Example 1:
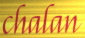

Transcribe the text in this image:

chalan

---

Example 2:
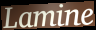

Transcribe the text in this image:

Lamine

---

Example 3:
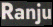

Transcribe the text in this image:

Ranju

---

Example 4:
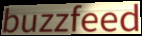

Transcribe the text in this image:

buzzfeed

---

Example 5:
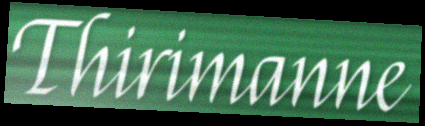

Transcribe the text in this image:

Thirimanne